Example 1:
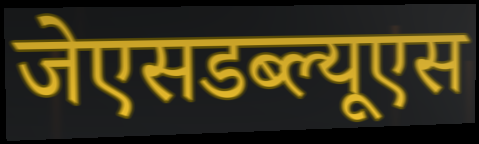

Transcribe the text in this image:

जेएसडब्ल्यूएस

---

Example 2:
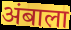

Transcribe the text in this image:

अंबाला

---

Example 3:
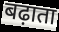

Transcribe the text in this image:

बढ़ाता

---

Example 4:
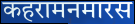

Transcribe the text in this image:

कहरामनमारस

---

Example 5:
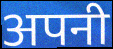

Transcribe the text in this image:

अपनी